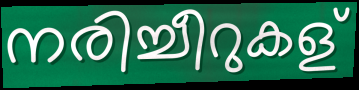
നരിച്ചീറുകള്